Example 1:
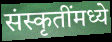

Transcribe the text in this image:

संस्कृतींमध्ये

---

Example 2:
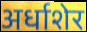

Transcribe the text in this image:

अर्धाशेर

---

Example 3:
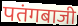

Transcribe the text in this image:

पतंगबाजी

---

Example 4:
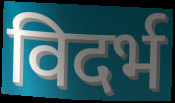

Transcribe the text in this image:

विदर्भ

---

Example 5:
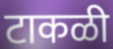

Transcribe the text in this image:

टाकळी